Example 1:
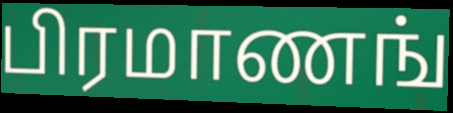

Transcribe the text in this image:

பிரமாணங்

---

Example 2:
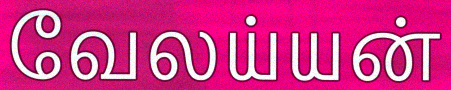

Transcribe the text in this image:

வேலய்யன்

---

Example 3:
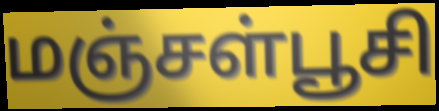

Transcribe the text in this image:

மஞ்சள்பூசி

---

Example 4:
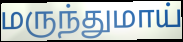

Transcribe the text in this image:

மருந்துமாய்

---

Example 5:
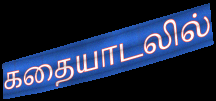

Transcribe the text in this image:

கதையாடலில்